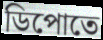
ডিপোতে